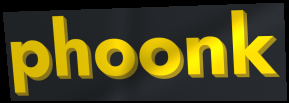
phoonk